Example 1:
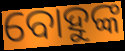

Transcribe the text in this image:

ବୋହୁଙ୍କ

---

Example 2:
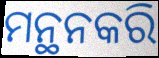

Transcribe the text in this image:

ମନ୍ଥନକରି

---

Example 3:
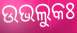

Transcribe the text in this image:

ଉଭଲୁକଃ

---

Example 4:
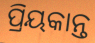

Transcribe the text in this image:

ପ୍ରିୟକାନ୍ତ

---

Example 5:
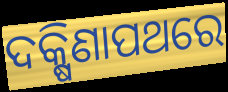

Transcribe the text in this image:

ଦକ୍ଷିଣାପଥରେ